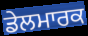
ਡੇਲਮਾਰਕ